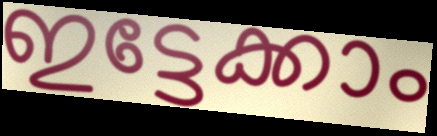
ഇട്ടേക്കാം